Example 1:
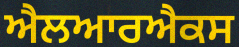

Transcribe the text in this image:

ਐਲਆਰਐਕਸ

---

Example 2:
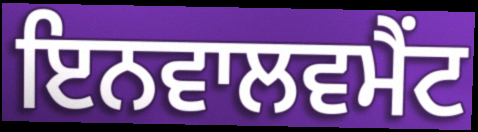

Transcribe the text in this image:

ਇਨਵਾਲਵਮੈਂਟ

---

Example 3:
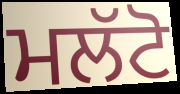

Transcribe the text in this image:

ਮਲੱਟੋ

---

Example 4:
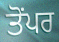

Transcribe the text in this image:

ਤੋਂਪਰ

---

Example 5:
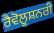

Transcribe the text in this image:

ਰੈਵੋਲੂਸ਼ਨਰੀ